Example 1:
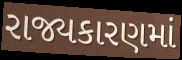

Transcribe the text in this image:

રાજ્યકારણમાં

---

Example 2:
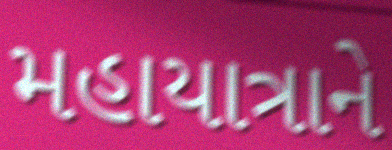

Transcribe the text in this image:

મહાયાત્રાને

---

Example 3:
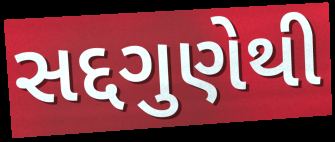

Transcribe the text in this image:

સદ્દગુણેથી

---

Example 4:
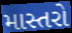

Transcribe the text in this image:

માસ્તરો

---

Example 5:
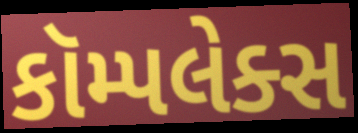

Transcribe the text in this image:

કૉમ્પલેક્સ